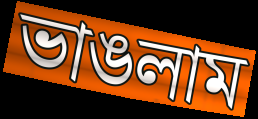
ভাঙলাম